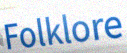
Folklore